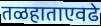
तळहाताएवढे